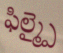
ఫిల్మ్పై